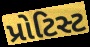
પ્રોટિસ્ટ